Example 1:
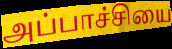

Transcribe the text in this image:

அப்பாச்சியை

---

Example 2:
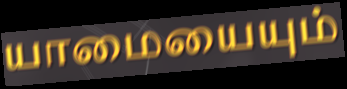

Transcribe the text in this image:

யாமையையும்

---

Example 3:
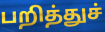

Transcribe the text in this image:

பறித்துச்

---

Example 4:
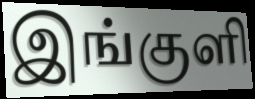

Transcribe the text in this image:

இங்குளி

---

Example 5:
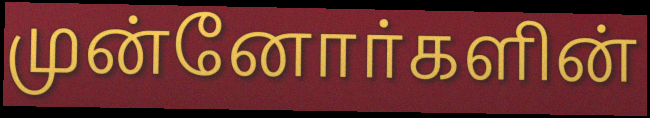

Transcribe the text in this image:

முன்னோர்களின்